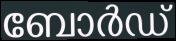
ബോർഡ്